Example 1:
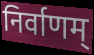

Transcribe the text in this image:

निर्वाणम्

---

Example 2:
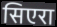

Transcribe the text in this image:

सिएरा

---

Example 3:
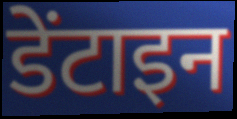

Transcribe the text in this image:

डेंटाइन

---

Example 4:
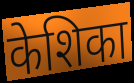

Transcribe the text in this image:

केशिका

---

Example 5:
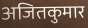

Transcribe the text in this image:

अजितकुमार